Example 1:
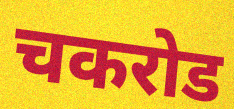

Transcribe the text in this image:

चकरोड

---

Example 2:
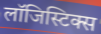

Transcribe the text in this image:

लॉजिस्टिक्स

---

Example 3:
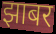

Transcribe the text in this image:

झाबर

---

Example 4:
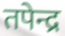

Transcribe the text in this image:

तपेन्द्र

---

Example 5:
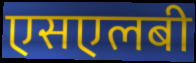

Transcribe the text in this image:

एसएलबी